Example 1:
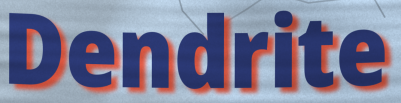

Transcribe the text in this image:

Dendrite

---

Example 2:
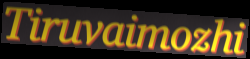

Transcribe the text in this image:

Tiruvaimozhi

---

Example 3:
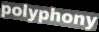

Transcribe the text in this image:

polyphony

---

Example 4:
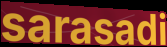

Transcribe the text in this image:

sarasadi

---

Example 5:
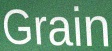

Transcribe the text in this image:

Grain